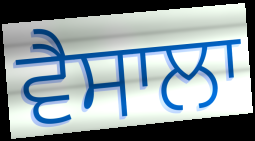
ਵੈਸਾਲਾ